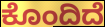
ಕೊಂದಿದೆ